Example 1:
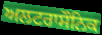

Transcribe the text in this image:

ਅਲਟਰਾਸੌਨਿਕ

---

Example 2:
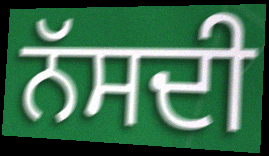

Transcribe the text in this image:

ਨੱਸਦੀ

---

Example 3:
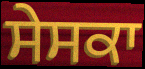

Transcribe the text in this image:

ਸੇਸਕਾ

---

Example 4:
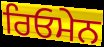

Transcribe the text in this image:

ਰਿਓਮੇਨ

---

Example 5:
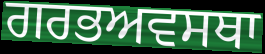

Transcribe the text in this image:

ਗਰਭਅਵਸਥਾ